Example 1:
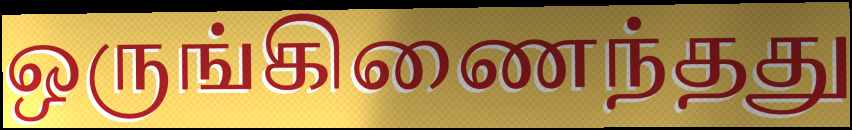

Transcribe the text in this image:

ஒருங்கிணைந்தது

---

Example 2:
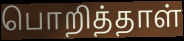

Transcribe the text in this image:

பொறித்தாள்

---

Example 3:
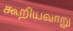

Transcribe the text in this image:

கூறியவாறு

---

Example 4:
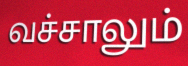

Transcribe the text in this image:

வச்சாலும்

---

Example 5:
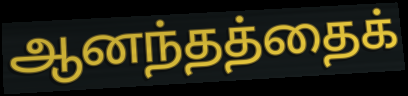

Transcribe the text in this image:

ஆனந்தத்தைக்